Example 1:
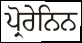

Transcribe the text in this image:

ਪ੍ਰੋਰੇਨਿਨ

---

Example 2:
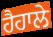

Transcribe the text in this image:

ਹੈਹਾਲੇ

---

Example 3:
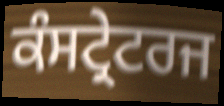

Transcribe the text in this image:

ਕੰਸਟ੍ਰੇਟਰਜ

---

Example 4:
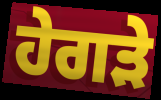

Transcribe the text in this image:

ਹੇਗੜੇ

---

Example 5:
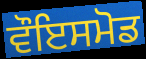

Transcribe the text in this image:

ਵੌਇਸਮੋਡ